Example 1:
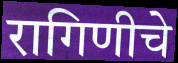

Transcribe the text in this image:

रागिणीचे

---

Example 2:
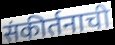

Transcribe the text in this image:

संकीर्तनाची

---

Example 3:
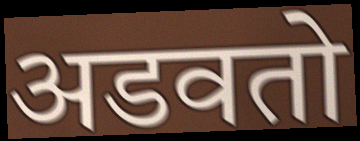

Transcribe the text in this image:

अडवतो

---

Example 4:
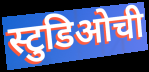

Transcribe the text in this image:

स्टुडिओची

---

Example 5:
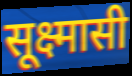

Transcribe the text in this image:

सूक्ष्मासी